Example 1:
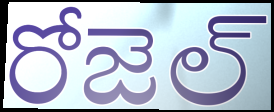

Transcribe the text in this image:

రోజెల్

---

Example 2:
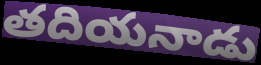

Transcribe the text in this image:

తదియనాడు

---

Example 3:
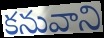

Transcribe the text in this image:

కనువాని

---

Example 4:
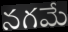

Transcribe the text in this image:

నగమే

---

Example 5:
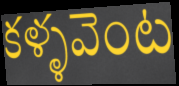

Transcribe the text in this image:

కళ్ళవెంట